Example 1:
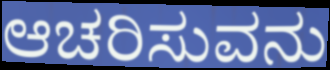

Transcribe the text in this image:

ಆಚರಿಸುವನು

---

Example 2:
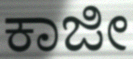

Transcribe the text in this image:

ಕಾಜೀ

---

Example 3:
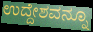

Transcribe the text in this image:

ಉದ್ದೇಶವನ್ನೂ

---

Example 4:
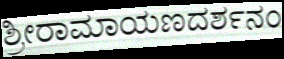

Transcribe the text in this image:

ಶ್ರೀರಾಮಾಯಣದರ್ಶನಂ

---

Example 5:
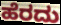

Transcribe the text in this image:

ಹೆರದು